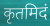
कृतमिदं